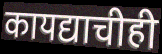
कायद्याचीही